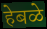
हेबळे